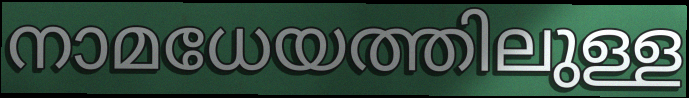
നാമധേയത്തിലുള്ള